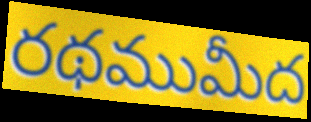
రథముమీద